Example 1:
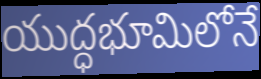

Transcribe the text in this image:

యుద్ధభూమిలోనే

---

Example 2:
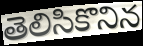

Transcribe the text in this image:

తెలిసికొనిన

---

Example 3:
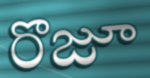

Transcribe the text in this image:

రొజూ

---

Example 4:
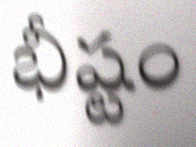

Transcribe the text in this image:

భీష్టం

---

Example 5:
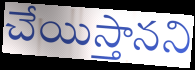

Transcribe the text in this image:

చేయిస్తానని